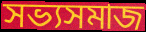
সভ্যসমাজ